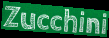
Zucchini